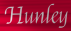
Hunley